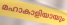
മഹാകാളിയായും